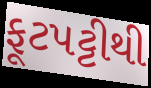
ફૂટપટ્ટીથી